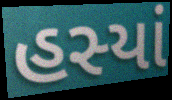
હસ્યાં